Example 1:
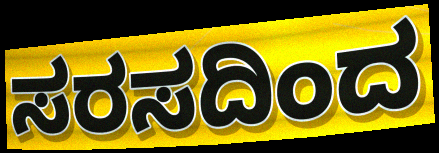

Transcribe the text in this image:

ಸರಸದಿಂದ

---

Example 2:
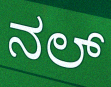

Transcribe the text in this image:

ನಲ್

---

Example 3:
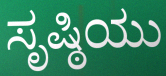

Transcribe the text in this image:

ಸೃಷ್ಠಿಯು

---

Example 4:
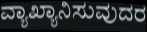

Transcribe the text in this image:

ವ್ಯಾಖ್ಯಾನಿಸುವುದರ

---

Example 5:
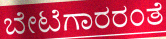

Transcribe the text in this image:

ಬೇಟೆಗಾರರಂತೆ